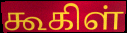
கூகிள்